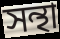
সন্থা